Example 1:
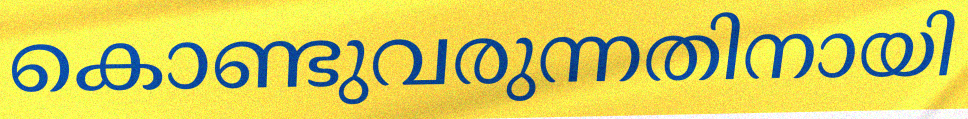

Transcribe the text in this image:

കൊണ്ടുവരുന്നതിനായി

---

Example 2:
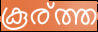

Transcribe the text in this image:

കൂര്ത്ത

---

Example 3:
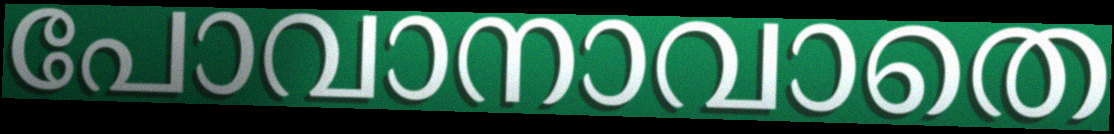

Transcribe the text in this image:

പോവാനാവാതെ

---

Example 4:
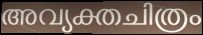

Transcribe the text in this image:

അവ്യക്തചിത്രം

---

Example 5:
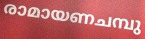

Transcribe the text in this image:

രാമായണചമ്പു